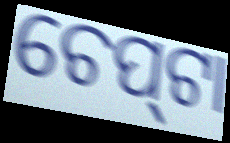
ଚେପ୍‍ଟା